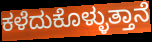
ಕಳೆದುಕೊಳ್ಳುತ್ತಾನೆ